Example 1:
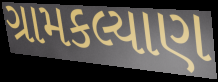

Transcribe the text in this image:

ગ્રામકલ્યાણ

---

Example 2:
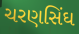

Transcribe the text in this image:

ચરણસિંઘ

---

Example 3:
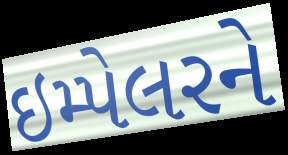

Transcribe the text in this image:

ઇમ્પેલરને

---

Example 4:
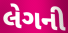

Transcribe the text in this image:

લેગની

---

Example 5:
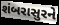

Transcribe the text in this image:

શંબરાસુરને